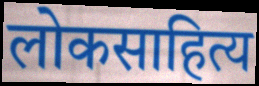
लोकसाहित्य